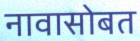
नावासोबत